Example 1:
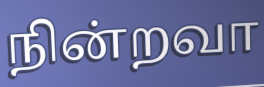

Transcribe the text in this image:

நின்றவா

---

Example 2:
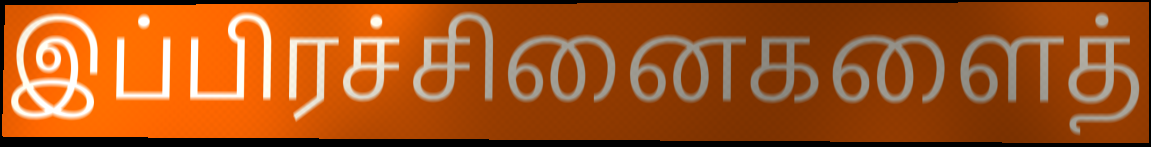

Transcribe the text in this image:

இப்பிரச்சினைகளைத்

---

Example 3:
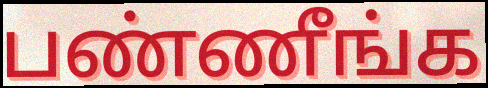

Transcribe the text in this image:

பண்ணீங்க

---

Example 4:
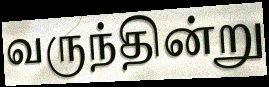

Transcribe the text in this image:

வருந்தின்று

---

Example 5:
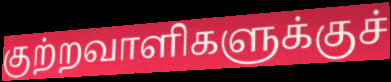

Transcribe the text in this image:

குற்றவாளிகளுக்குச்